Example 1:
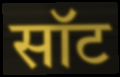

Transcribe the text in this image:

सॉट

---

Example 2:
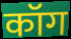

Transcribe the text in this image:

कॉग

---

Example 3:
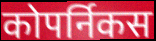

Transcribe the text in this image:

कोपर्निकस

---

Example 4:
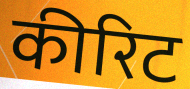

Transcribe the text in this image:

कीरिट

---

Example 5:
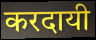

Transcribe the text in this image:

करदायी